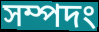
সম্পদং